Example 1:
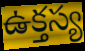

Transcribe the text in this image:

ఉక్తస్య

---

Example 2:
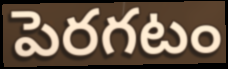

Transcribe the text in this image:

పెరగటం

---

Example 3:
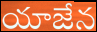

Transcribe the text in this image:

యాజేన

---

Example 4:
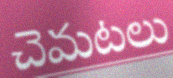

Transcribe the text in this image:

చెమటలు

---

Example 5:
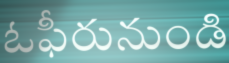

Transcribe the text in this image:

ఓఫీరునుండి